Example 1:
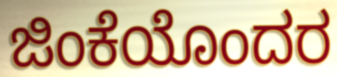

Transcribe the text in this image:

ಜಿಂಕೆಯೊಂದರ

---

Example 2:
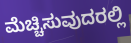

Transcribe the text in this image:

ಮೆಚ್ಚಿಸುವುದರಲ್ಲಿ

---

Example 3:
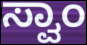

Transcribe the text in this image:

ಸ್ವಾಂ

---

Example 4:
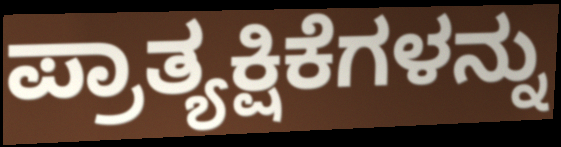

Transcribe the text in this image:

ಪ್ರಾತ್ಯಕ್ಷಿಕೆಗಳನ್ನು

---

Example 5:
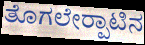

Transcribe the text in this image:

ತೊಗಲೇರ‍್ಪಾಟಿನ